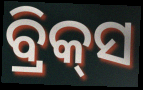
ବ୍ରିକ୍‌ସ